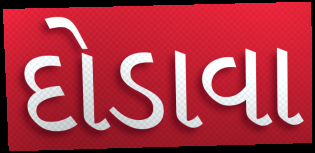
દોડાવા